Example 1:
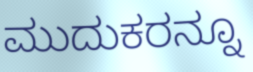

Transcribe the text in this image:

ಮುದುಕರನ್ನೂ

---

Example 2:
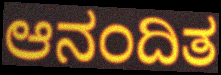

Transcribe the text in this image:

ಆನಂದಿತ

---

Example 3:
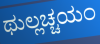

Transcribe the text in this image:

ಥುಲ್ಲಚ್ಚಯಂ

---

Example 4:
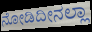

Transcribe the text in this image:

ನೋಡಿದೀನಲ್ಲಾ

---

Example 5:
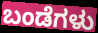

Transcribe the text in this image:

ಬಂಡೆಗಳು